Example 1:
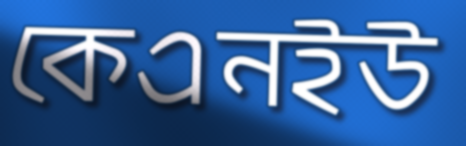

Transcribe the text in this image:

কেএনইউ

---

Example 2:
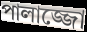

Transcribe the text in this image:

পালাজ্জো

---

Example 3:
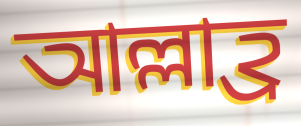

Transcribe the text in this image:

আল্লাহ্র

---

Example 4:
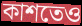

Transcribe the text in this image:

কাশতেও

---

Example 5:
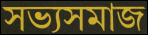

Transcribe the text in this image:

সভ্যসমাজ